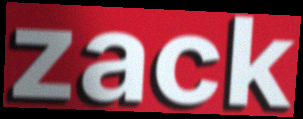
zack